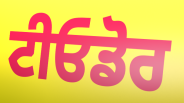
ਟੀਓਡੋਰ